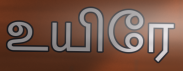
உயிரே